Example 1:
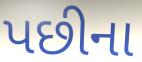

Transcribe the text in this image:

પછીના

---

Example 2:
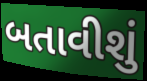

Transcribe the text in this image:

બતાવીશું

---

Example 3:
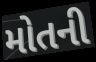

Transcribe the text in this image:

મોતની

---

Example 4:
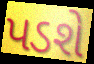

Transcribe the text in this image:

પડશે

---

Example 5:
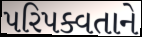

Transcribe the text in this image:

પરિપક્વતાને